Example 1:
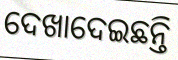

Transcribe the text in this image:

ଦେଖାଦେଇଛନ୍ତି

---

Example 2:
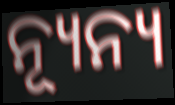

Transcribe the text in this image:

ନ୍ୟୂନ୍ୟ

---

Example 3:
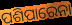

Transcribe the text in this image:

ପଶିପାରେନା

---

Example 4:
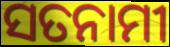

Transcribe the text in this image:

ସତନାମୀ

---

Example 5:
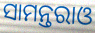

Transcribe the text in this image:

ସାମନ୍ତରାଓ